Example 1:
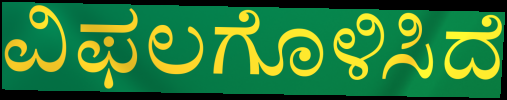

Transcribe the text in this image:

ವಿಫಲಗೊಳಿಸಿದೆ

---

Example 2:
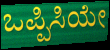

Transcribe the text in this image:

ಒಪ್ಪಿಸಿಯೇ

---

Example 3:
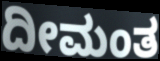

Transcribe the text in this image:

ದೀಮಂತ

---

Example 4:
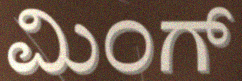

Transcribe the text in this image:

ಮಿಂಗ್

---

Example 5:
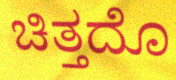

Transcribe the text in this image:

ಚಿತ್ತದೊ